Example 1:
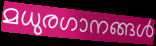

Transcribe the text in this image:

മധുരഗാനങ്ങൾ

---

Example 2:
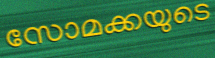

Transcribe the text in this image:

സോമക്കയുടെ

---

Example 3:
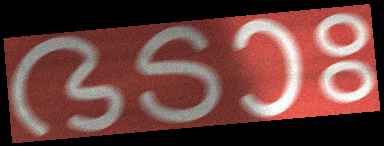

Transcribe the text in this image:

ഭടാഃ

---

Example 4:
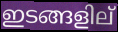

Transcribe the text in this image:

ഇടങ്ങളില്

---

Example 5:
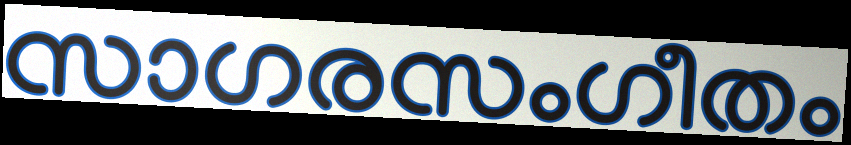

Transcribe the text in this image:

സാഗരസംഗീതം